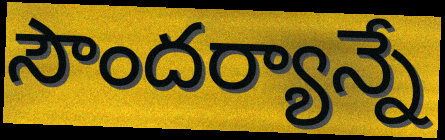
సౌందర్యాన్నే